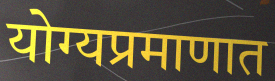
योग्यप्रमाणात